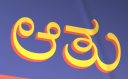
ಆತು